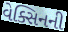
વેક્સિનની